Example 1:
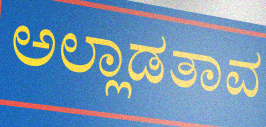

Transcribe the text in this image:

ಅಲ್ಲಾಡತಾವ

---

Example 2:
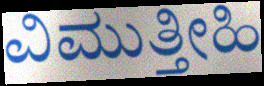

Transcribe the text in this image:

ವಿಮುತ್ತೀಹಿ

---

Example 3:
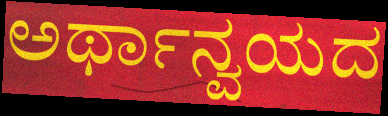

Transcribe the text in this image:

ಅರ್ಥಾನ್ವಯದ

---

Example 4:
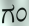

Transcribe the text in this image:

ಗಂ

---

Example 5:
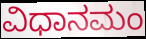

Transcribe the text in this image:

ವಿಧಾನಮಂ